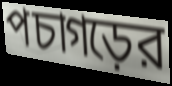
পচাগড়ের